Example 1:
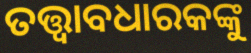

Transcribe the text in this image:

ତତ୍ତ୍ଵାବଧାରକଙ୍କୁ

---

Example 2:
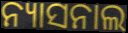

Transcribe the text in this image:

ନ୍ୟାସନାଲ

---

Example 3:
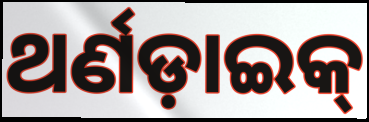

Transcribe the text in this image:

ଥର୍ଣଡ଼ାଇକ୍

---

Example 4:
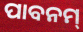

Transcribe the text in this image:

ପାବନମ୍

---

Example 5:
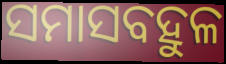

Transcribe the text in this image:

ସମାସବହୁଳ